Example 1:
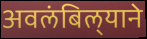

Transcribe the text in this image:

अवलंबिल्याने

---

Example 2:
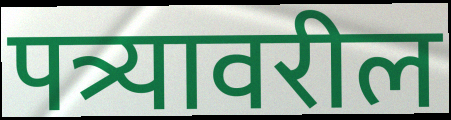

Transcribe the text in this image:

पत्र्यावरील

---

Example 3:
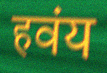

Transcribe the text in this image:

हवंय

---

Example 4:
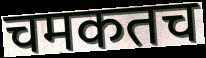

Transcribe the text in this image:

चमकतच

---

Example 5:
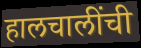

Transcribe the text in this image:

हालचालींची